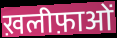
ख़लीफ़ाओं